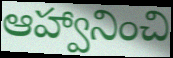
ఆహ్వానించి